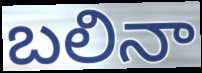
బలినా